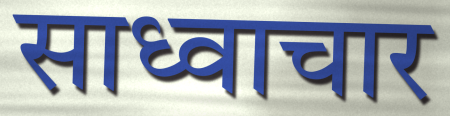
साध्वाचार